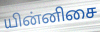
யின்னிசை